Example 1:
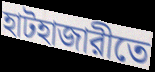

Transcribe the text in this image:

হাটহাজারীতে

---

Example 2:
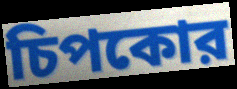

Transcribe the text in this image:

চিপকোর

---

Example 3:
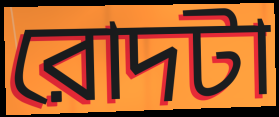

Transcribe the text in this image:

রোদটা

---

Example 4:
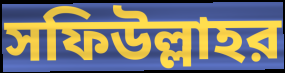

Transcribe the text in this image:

সফিউল্লাহর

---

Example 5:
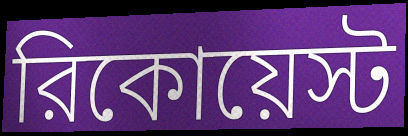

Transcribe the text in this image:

রিকোয়েস্ট